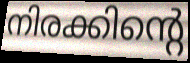
നിരക്കിന്റെ